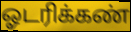
ஓடரிக்கண்